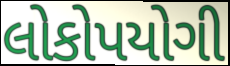
લોકોપયોગી